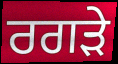
ਰਗੜੇ